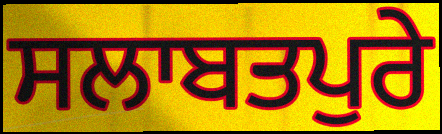
ਸਲਾਬਤਪੁਰੇ